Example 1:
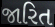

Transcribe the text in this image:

જારિત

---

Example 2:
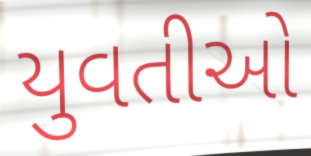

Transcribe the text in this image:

યુવતીઓ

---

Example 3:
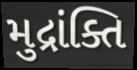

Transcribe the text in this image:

મુદ્રાંક્તિ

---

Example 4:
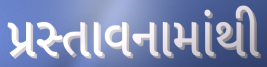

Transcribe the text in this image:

પ્રસ્તાવનામાંથી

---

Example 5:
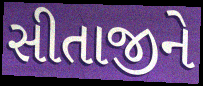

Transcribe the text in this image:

સીતાજીને